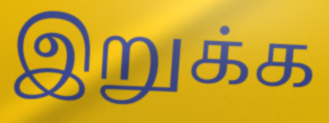
இறுக்க